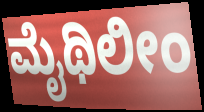
ಮೈಥಿಲೀಂ